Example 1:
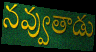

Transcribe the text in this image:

నవ్వుతాడు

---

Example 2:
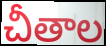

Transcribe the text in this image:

చీతాల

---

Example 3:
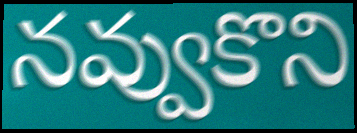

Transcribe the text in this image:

నవ్వుకొని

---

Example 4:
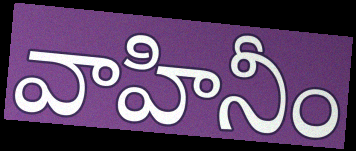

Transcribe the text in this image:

వాహినీం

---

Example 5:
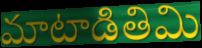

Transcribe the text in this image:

మాటాడితిమి